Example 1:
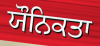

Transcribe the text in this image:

ਯੌਨਿਕਤਾ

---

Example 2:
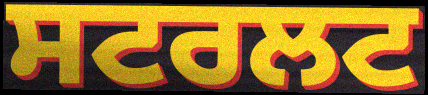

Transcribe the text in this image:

ਸਟਰਲਟ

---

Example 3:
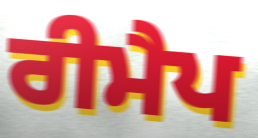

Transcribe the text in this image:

ਰੀਮੈਪ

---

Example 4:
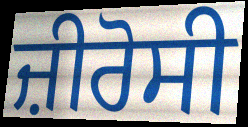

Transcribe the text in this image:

ਜ਼ੀਰੋਸੀ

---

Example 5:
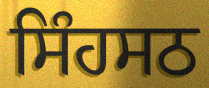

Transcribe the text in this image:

ਸਿੰਹਸਠ